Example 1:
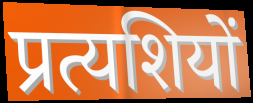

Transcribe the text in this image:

प्रत्यशियों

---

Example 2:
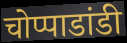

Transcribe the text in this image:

चोप्पाडांडी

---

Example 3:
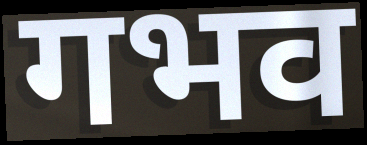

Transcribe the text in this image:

गभव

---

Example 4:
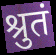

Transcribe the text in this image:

श्रुतं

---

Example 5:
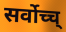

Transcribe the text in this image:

सर्वोच्च्